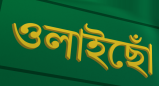
ওলাইছোঁ